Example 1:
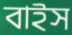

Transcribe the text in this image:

বাইস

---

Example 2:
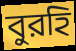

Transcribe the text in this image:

বুরহি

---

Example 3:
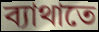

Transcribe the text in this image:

ব্যাথাতে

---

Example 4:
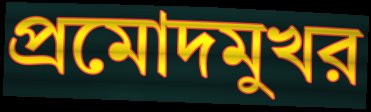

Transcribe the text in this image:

প্রমোদমুখর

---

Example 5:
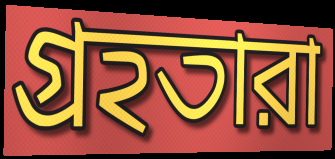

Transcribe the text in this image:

গ্রহতারা